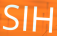
SIH